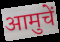
आमुचें